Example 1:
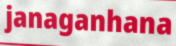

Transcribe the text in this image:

janaganhana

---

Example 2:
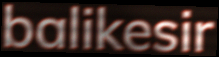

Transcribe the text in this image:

balikesir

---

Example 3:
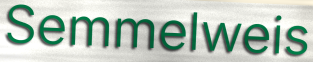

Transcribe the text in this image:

Semmelweis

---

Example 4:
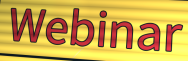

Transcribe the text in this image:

Webinar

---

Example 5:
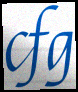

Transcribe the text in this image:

cfg